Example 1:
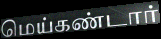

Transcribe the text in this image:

மெய்கண்டார்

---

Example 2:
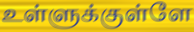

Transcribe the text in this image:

உள்ளுக்குள்ளே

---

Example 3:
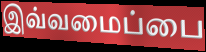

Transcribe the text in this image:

இவ்வமைப்பை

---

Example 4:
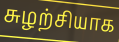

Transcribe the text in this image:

சுழற்சியாக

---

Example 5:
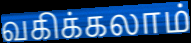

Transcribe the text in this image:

வகிக்கலாம்